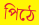
পিঠে